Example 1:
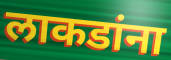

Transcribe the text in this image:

लाकडांना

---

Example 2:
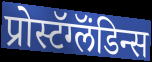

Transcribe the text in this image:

प्रोस्टॅग्लॅंडिन्स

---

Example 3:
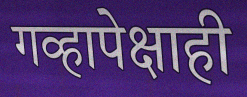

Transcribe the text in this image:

गव्हापेक्षाही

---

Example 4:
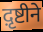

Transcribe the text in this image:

द़ृष्टीने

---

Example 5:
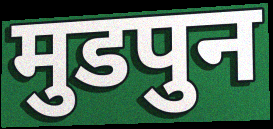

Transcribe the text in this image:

मुडपुन